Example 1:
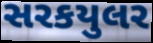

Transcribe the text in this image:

સરકયુલર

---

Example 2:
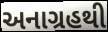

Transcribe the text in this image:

અનાગ્રહથી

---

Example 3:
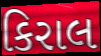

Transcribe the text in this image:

કિરાલ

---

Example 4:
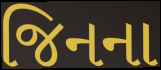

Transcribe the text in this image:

જિનના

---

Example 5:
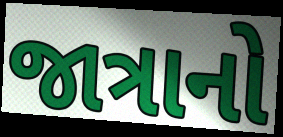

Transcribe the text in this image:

જાત્રાનો